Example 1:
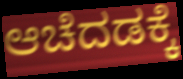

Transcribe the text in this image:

ಆಚೆದಡಕ್ಕೆ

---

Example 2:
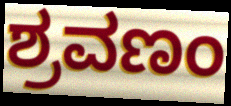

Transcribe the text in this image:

ಶ್ರವಣಂ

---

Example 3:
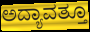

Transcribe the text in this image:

ಅದ್ಯಾವತ್ತೂ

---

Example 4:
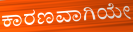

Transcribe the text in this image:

ಕಾರಣವಾಗಿಯೇ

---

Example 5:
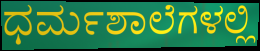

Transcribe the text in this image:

ಧರ್ಮಶಾಲೆಗಳಲ್ಲಿ